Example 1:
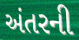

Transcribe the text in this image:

અંતરની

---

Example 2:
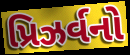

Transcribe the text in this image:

પ્રિઝર્વનો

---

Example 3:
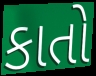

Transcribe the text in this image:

કાતો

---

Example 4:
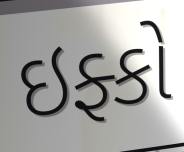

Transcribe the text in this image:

ઇફ્કો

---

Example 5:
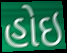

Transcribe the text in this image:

હોઇ